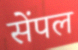
सेंपल